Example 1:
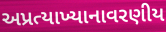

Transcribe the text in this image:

અપ્રત્યાખ્યાનાવરણીય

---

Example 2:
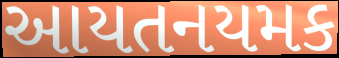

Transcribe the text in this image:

આયતનયમક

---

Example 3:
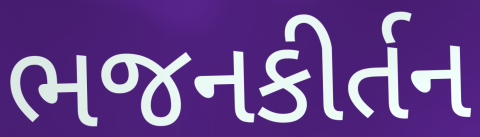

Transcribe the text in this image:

ભજનકીર્તન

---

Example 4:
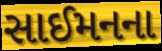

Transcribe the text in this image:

સાઈમનના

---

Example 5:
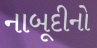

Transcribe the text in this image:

નાબૂદીનો